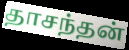
தாசந்தன்